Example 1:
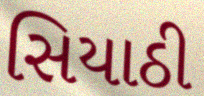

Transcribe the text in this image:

સિયાઠી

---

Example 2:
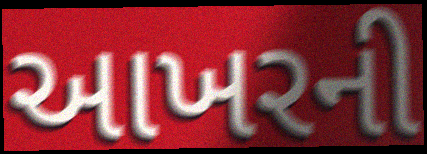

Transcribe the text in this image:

આખરની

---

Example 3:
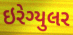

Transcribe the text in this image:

ઇરેગ્યુલર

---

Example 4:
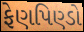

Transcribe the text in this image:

ફેણપિણ્ડો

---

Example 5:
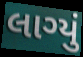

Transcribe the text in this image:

લાગ્યું